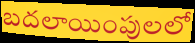
బదలాయింపులలో